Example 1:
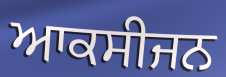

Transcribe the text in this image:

ਆਕਸੀਜਨ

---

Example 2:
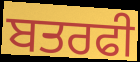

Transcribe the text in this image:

ਬਤਰਫੀ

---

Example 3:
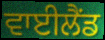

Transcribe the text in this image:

ਵਾਈਲੈਂਡ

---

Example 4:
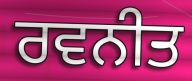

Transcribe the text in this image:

ਰਵਨੀਤ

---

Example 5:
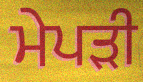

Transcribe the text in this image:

ਮੇਪੜੀ